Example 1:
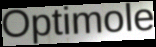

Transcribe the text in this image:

Optimole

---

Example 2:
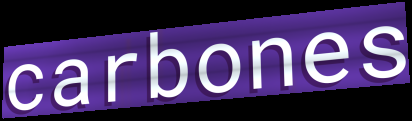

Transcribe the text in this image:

carbones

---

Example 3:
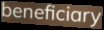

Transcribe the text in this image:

beneficiary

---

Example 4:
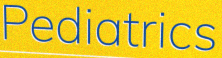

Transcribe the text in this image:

Pediatrics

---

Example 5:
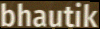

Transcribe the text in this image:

bhautik